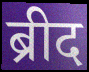
ब्रीद